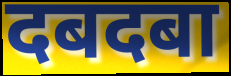
दबदबा